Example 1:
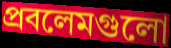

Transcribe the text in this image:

প্রবলেমগুলো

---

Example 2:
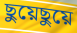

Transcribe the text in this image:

ছুয়েছুয়ে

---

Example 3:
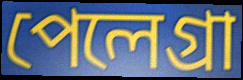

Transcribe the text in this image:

পেলেগ্রা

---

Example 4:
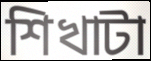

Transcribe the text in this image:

শিখাটা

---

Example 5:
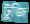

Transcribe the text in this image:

টুজি